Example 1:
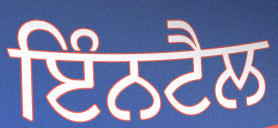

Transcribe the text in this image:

ਇੰਨਟੈਲ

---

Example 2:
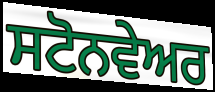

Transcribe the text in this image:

ਸਟੋਨਵੇਅਰ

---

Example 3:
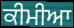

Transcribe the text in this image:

ਕੀਮੀਆ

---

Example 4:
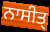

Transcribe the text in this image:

ਨਾਸੀਤ੍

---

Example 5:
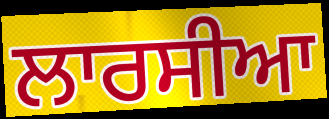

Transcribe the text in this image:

ਲਾਰਸੀਆ